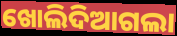
ଖୋଲିଦିଆଗଲା